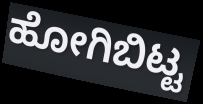
ಹೋಗಿಬಿಟ್ಟ